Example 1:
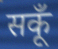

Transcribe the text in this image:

सकूँ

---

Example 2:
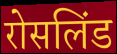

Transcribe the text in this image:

रोसलिंड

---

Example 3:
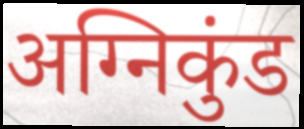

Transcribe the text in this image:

अग्निकुंड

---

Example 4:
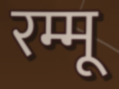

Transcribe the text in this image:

रम्मू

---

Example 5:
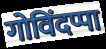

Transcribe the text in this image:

गोविंदप्पा